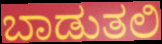
ಬಾಡುತಲಿ